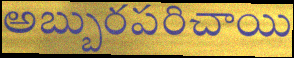
అబ్బురపరిచాయి